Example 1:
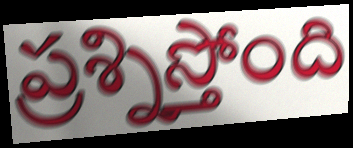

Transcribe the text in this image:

ప్రశ్నిస్తోంది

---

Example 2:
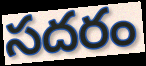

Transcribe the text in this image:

సదరం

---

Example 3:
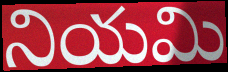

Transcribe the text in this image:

నియమి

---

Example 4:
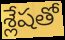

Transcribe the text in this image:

శ్లేషతో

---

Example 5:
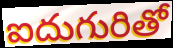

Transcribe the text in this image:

ఐదుగురితో